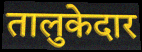
तालुकेदार